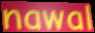
nawal